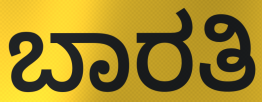
ಬಾರತಿ